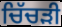
ਚਿੱਚੜੀ